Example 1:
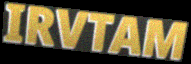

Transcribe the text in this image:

IRVTAM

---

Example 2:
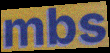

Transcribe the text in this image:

mbs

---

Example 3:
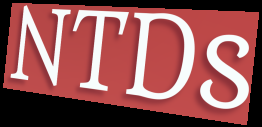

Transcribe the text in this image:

NTDs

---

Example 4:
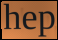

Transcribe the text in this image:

hep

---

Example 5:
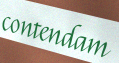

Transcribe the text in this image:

contendam